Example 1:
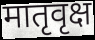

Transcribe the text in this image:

मातृवृक्ष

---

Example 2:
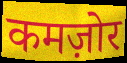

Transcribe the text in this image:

कमज़ोर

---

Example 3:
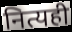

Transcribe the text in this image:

नित्यही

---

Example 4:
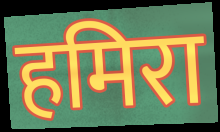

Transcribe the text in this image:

हमिरा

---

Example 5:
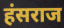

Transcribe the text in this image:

हंसराज